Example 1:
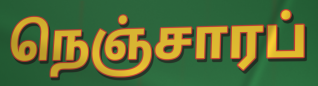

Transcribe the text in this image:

நெஞ்சாரப்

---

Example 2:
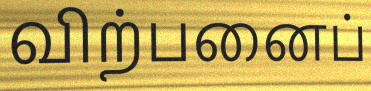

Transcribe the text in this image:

விற்பனைப்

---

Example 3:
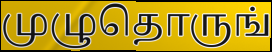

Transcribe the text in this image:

முழுதொருங்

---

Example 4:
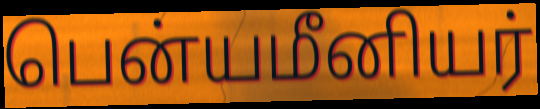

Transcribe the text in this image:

பென்யமீனியர்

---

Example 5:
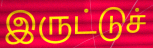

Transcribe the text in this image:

இருட்டுச்